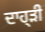
ਦਾਹ੍ੜੀ